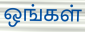
ஒங்கள்